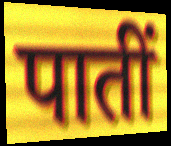
पातीं